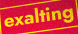
exalting